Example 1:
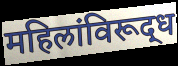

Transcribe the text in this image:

महिलांविरूद्ध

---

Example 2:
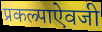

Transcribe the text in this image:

प्रकल्पाऐवजी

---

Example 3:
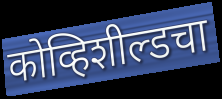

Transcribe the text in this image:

कोव्हिशील्डचा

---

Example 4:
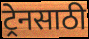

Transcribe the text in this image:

ट्रेनसाठी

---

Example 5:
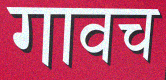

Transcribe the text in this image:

गावच